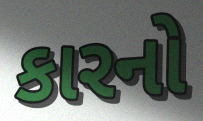
કારનો